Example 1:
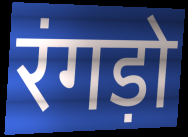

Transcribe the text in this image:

रंगड़ो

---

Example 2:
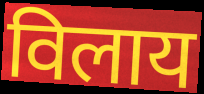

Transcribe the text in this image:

विलाय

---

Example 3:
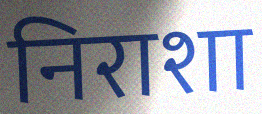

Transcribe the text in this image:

निराशा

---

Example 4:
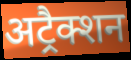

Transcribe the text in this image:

अट्रैक्शन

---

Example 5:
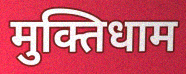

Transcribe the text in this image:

मुक्तिधाम